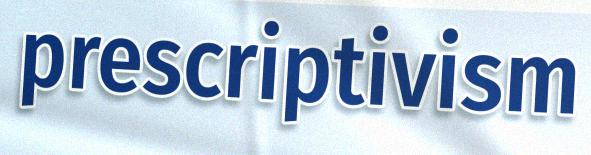
prescriptivism